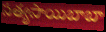
సత్యసాయిబాబా